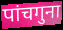
पांचगुना